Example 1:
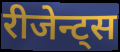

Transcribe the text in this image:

रीजेन्ट्स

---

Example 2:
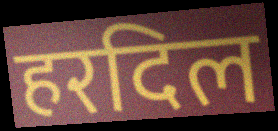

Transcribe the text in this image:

हरदिल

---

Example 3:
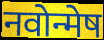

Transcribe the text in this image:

नवोन्‍मेष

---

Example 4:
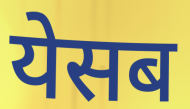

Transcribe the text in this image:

येसब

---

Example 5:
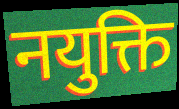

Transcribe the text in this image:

नयुक्ति